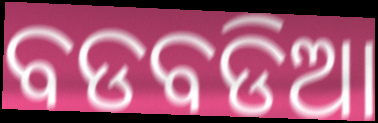
ବଡବଡିଆ